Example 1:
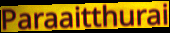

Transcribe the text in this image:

Paraaitthurai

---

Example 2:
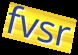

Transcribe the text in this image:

fvsr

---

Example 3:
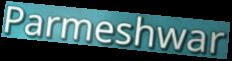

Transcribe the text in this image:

Parmeshwar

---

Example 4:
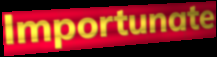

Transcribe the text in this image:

Importunate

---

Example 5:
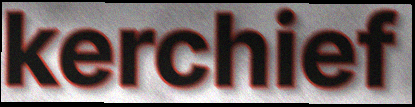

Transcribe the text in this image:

kerchief